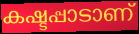
കഷ്ടപ്പാടാണ്